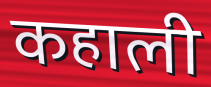
कहाली